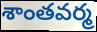
శాంతవర్మ